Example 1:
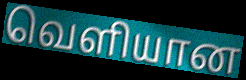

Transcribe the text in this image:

வெளியான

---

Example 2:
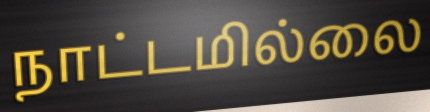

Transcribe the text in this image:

நாட்டமில்லை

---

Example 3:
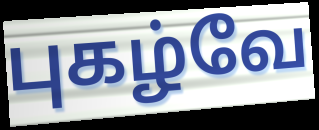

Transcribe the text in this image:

புகழ்வே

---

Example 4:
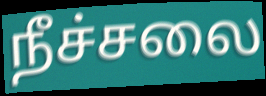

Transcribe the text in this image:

நீச்சலை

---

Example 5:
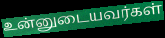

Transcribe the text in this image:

உன்னுடையவர்கள்